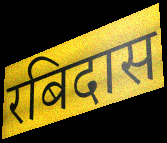
रबिदास